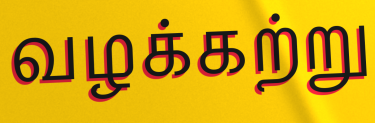
வழக்கற்று